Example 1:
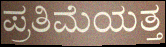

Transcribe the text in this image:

ಪ್ರತಿಮೆಯತ್ತ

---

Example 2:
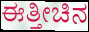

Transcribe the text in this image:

ಈತ್ತೀಚಿನ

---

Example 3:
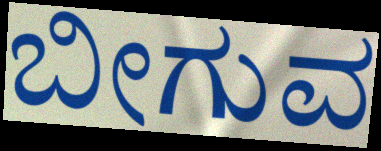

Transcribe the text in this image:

ಬೀಗುವ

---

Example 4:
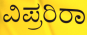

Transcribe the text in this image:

ವಿಪ್ರರಿರಾ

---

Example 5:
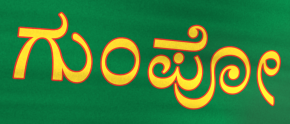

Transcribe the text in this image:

ಗುಂಪೋ